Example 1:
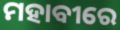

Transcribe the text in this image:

ମହାବୀରେ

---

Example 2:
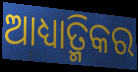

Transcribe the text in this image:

ଆଧ୍ୟାତ୍ମିକର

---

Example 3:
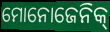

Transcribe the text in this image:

ମୋନୋଜେନିକ୍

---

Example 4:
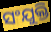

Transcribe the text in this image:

ସଂଯୁକ୍ତି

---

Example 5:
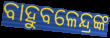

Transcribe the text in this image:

ବାହୁବଳେନ୍ଦ୍ରଙ୍କ